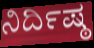
ನಿರ್ದಿಷ್ಠ